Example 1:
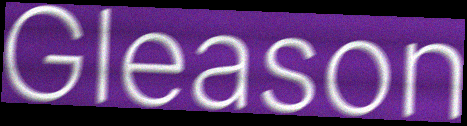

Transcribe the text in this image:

Gleason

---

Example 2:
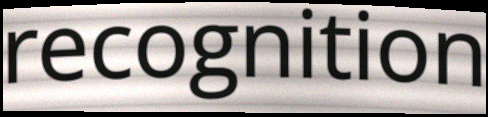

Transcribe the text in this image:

recognition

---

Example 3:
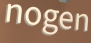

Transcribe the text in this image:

nogen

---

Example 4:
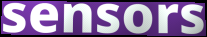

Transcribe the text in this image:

sensors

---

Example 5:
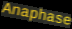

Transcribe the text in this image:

Anaphase